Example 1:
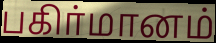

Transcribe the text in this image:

பகிர்மானம்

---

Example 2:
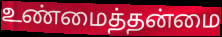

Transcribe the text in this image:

உண்மைத்தன்மை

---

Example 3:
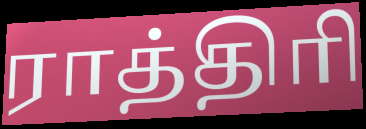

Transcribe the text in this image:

ராத்திரி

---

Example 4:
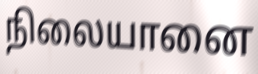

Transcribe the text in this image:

நிலையானை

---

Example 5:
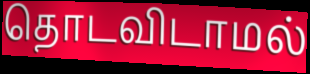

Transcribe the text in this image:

தொடவிடாமல்